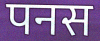
पनस